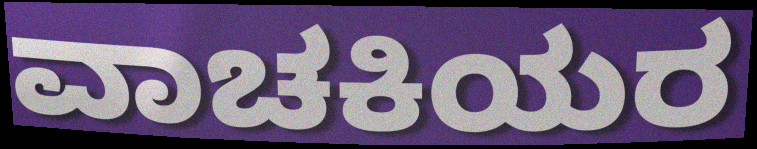
ವಾಚಕಿಯರ